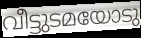
വീട്ടുടമയോടു